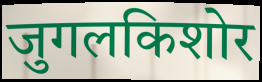
जुगलकिशोर